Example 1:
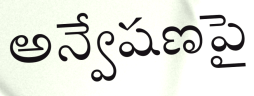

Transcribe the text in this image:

అన్వేషణపై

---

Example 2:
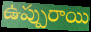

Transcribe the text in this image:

ఉప్పురాయి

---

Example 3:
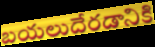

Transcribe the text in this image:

బయలుదేరడానికి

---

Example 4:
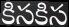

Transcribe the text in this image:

కిసకిస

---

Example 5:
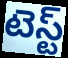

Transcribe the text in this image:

టెస్ట్